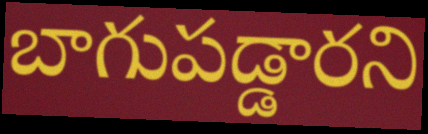
బాగుపడ్డారని